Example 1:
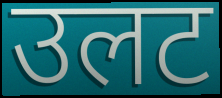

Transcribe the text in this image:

उलट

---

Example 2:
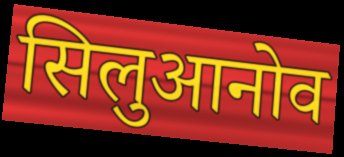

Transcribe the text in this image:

सिलुआनोव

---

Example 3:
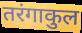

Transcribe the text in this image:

तरंगाकुल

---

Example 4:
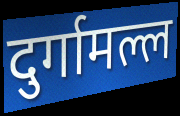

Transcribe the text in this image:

दुर्गामल्ल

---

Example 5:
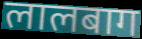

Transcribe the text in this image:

लालबाग